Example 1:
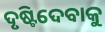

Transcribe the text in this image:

ଦୃଷ୍ଟିଦେବାକୁ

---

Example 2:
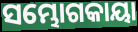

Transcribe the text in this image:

ସମ୍ଭୋଗକାୟା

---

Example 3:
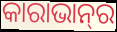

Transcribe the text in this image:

କାରାଭାନ୍‍ର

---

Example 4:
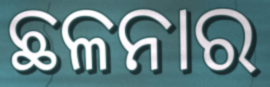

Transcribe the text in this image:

ଛଳନାର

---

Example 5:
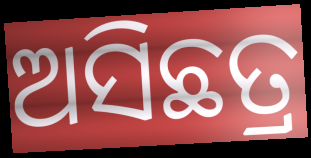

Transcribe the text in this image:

ଅସିଛତ୍ର